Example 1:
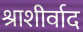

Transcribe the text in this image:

श्राशीर्वाद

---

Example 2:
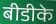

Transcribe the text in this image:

बीडीके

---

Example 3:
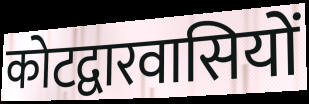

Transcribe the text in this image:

कोटद्वारवासियों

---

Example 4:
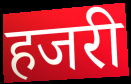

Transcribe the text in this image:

हजरी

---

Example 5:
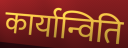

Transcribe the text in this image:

कार्यान्विति